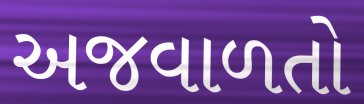
અજવાળતો